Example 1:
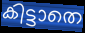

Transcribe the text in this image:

കിട്ടാതെ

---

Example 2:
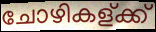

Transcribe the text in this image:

ചോഴികള്ക്ക്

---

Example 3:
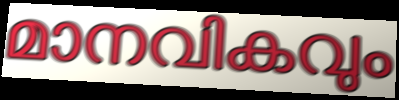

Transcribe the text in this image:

മാനവികവും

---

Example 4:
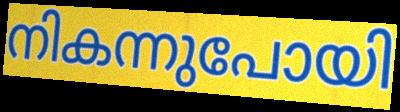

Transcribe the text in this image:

നികന്നുപോയി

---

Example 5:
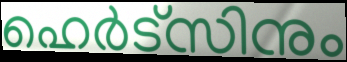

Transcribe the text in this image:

ഹെർട്സിനും